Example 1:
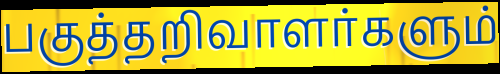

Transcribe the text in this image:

பகுத்தறிவாளர்களும்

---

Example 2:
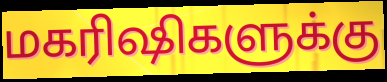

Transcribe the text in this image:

மகரிஷிகளுக்கு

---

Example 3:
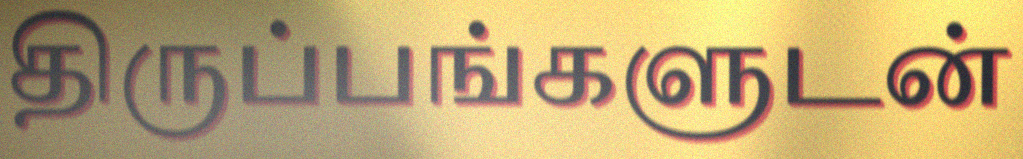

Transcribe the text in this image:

திருப்பங்களுடன்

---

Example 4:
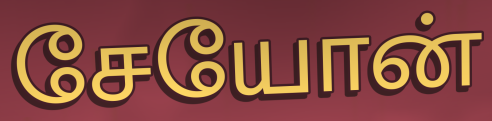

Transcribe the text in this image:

சேயோன்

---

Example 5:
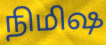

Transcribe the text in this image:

நிமிஷ